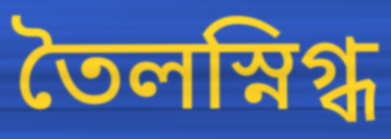
তৈলস্নিগ্ধ